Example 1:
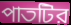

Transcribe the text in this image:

পাতটির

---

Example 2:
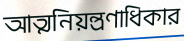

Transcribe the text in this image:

আত্মনিয়ন্ত্রণাধিকার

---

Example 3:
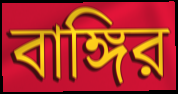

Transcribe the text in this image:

বাঙ্গির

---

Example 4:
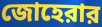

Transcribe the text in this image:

জোহেরার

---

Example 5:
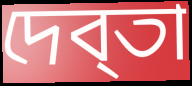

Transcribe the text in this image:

দেব্‌তা